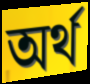
অৰ্থ